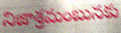
నిజాశ్రమంబునకు